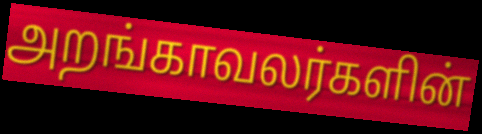
அறங்காவலர்களின்